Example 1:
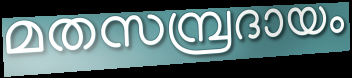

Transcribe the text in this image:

മതസമ്പ്രദായം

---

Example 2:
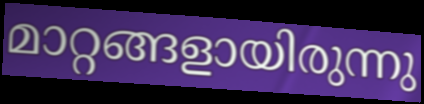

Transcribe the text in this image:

മാറ്റങ്ങളായിരുന്നു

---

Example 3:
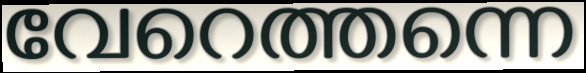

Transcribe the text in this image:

വേറെത്തന്നെ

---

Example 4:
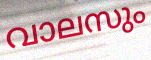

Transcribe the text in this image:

വാലസും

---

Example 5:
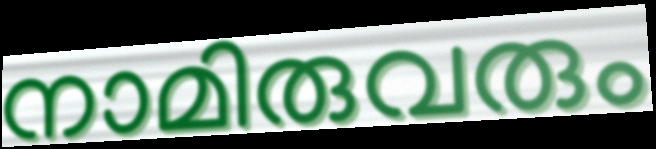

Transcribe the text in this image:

നാമിരുവരും